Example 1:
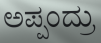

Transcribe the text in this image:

ಅಪ್ಪಂದ್ರು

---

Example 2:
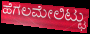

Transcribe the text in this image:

ಹೆಗಲಮೇಲಿಟ್ಟು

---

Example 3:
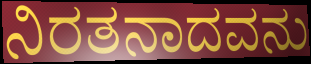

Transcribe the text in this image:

ನಿರತನಾದವನು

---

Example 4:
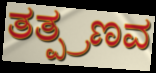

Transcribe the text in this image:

ತತ್ಪ್ರಣವ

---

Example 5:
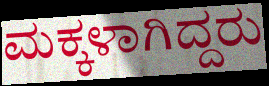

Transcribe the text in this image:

ಮಕ್ಕಳಾಗಿದ್ದರು